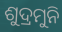
ଶୁଦ୍ରମୁନି